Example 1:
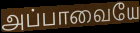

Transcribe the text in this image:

அப்பாவையே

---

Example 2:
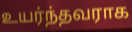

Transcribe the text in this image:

உயர்ந்தவராக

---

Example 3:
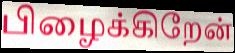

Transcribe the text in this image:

பிழைக்கிறேன்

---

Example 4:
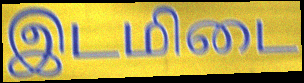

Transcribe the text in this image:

இடமிடை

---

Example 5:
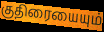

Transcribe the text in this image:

குதிரையையும்